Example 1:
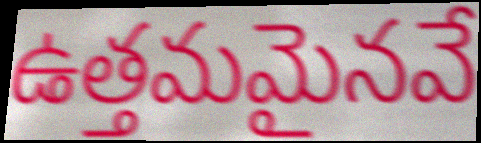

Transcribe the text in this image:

ఉత్తమమైనవే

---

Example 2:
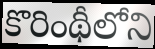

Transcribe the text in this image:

కొరింథీలోని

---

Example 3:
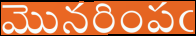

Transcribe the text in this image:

మొనరింపఁ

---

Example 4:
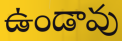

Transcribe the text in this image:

ఉండావు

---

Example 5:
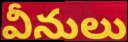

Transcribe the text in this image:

వీనులు